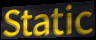
Static